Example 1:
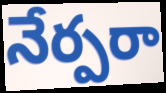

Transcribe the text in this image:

నేర్పరా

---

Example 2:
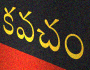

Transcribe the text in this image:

కవచం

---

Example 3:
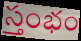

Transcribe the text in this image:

స్తంభం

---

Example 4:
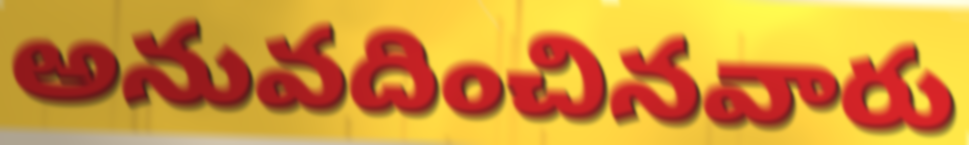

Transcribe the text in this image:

అనువదించినవారు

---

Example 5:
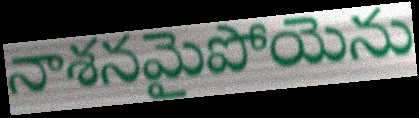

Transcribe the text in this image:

నాశనమైపోయెను